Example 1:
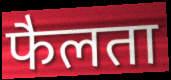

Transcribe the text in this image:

फैलता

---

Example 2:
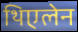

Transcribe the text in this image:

थिएलेन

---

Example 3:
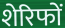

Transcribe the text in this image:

शेरिफों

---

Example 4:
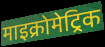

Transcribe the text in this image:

माइक्रोमेट्रिक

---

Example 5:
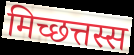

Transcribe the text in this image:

मिच्छत्तस्स